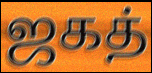
ஜகத்